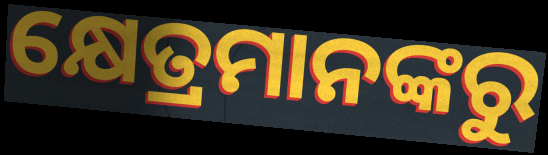
କ୍ଷେତ୍ରମାନଙ୍କରୁ